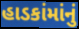
હાડકાંમાંનું